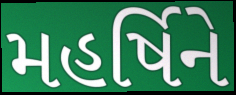
મહર્ષિને